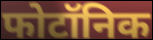
फोटॉनिक